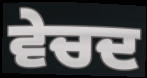
ਵੇਚਦ